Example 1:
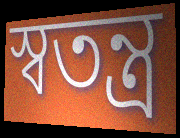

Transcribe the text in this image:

স্বতন্ত্ৰ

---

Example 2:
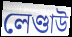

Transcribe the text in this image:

লেণ্ডাউ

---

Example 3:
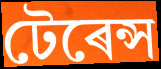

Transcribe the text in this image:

টেৰেন্স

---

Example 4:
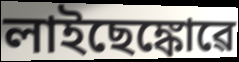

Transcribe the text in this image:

লাইছেঙ্কোৱে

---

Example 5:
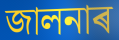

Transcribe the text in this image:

জালনাৰ